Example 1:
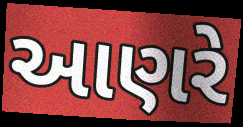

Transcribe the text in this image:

આણરે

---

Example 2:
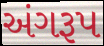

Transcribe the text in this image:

અંગરૂપ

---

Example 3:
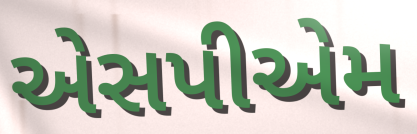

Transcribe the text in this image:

એસપીએમ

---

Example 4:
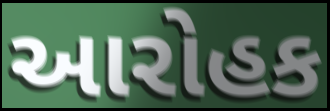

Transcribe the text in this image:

આરોહક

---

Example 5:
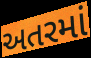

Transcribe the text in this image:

અતરમાં